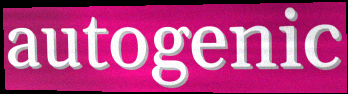
autogenic